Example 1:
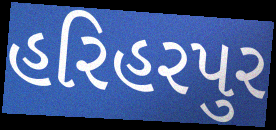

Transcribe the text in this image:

હરિહરપુર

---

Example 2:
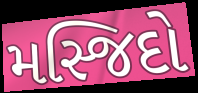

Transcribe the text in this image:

મસ્જિદો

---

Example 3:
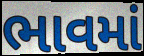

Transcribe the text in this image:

ભાવમાં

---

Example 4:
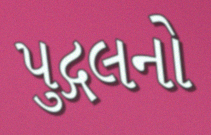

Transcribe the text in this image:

પુદ્ગલનો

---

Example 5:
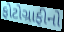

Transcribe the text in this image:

ફોટોગ્રાફીનો